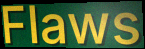
Flaws